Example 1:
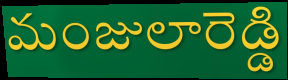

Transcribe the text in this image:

మంజులారెడ్డి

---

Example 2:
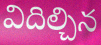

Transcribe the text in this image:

విదిల్చిన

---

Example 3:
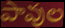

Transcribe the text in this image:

పావుల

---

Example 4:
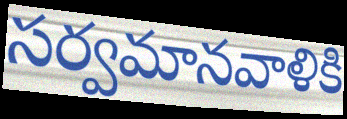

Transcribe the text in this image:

సర్వమానవాళికి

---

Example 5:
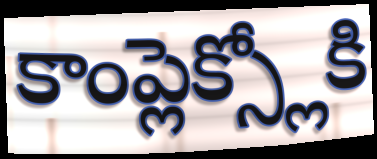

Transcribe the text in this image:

కాంప్లెక్స్లోకి